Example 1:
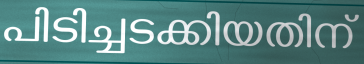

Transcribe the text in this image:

പിടിച്ചടക്കിയതിന്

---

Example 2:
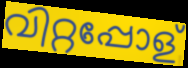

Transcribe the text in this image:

വിറ്റപ്പോള്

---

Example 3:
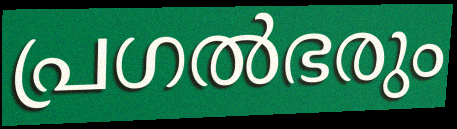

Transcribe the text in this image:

പ്രഗൽഭരും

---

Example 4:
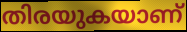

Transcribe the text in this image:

തിരയുകയാണ്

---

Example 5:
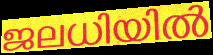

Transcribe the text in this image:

ജലധിയിൽ